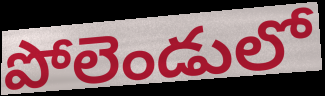
పోలెండులో